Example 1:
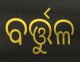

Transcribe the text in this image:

ବର୍ତ୍ତୁଳ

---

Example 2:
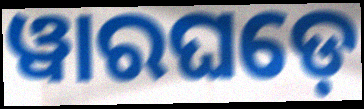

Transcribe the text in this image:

ୱାରଘଡ଼େ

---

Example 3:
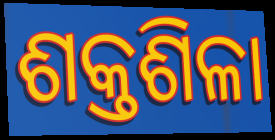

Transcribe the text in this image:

ଶକ୍ତଶିଳା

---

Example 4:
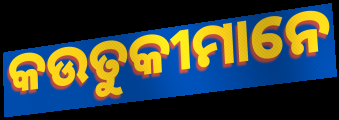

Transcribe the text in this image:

କଉତୁକୀମାନେ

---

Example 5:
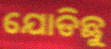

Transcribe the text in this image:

ଯୋଡିଛୁ